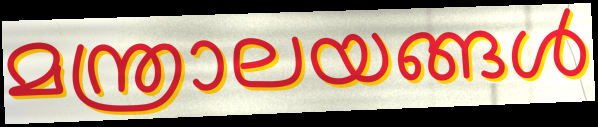
മന്ത്രാലയങ്ങൾ